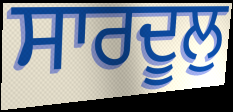
ਸਾਰਦੂਲੁ